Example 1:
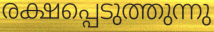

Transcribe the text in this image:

രക്ഷപ്പെടുത്തുന്നു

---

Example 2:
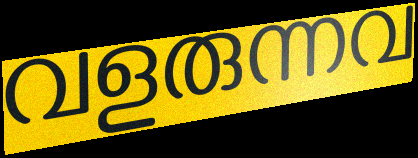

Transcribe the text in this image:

വളരുന്നവ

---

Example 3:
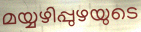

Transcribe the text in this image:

മയ്യഴിപ്പുഴയുടെ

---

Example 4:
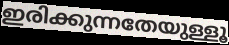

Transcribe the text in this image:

ഇരിക്കുന്നതേയുള്ളൂ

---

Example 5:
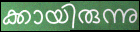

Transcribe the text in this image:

ക്കായിരുന്നു